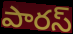
పారస్